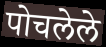
पोचलेले